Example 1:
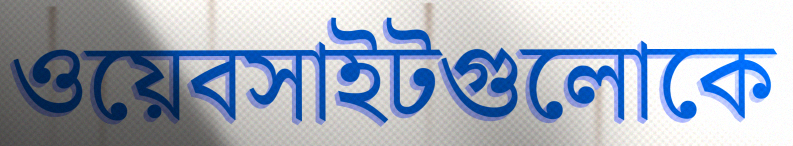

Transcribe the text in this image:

ওয়েবসাইটগুলোকে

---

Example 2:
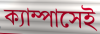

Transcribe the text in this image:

ক্যাম্পাসেই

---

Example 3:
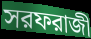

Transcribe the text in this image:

সরফরাজী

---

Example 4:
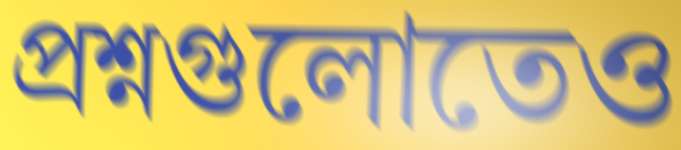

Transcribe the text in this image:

প্রশ্নগুলোতেও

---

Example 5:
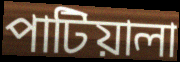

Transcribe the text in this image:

পাটিয়ালা